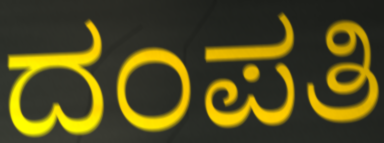
ದಂಪತಿ